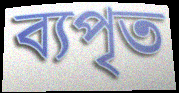
ব্যপৃত